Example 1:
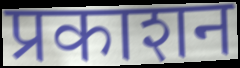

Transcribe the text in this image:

प्रकाशन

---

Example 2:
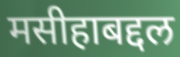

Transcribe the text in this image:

मसीहाबद्दल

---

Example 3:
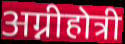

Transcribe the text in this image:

अग्नीहोत्री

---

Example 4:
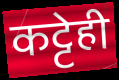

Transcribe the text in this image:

कट्टेही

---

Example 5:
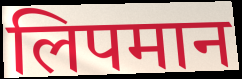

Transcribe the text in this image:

लिपमान